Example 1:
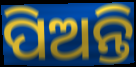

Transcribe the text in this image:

ପିଅନ୍ତି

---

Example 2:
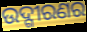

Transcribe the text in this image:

ଉଦ୍ଗୀରଣର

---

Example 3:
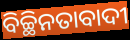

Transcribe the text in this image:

ବିଚ୍ଛିନତାବାଦୀ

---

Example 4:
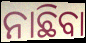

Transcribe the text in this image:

ନାଛିବା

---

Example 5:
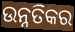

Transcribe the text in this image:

ଉନ୍ନତିକର